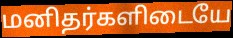
மனிதர்களிடையே